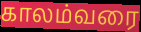
காலம்வரை